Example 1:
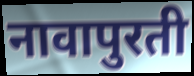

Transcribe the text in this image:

नावापुरती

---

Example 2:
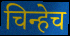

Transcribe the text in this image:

चिन्हेच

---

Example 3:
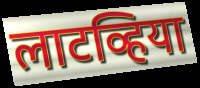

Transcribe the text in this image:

लाटव्हिया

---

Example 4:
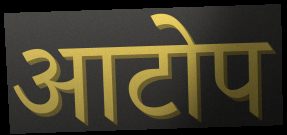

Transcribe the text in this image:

आटोप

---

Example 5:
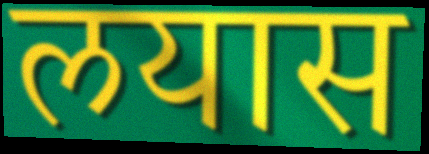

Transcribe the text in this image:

लयास